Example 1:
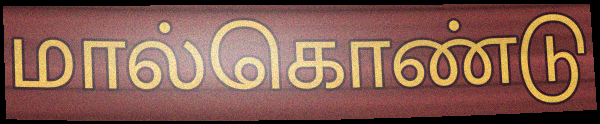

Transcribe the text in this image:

மால்கொண்டு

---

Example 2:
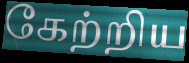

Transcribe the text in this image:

கேற்றிய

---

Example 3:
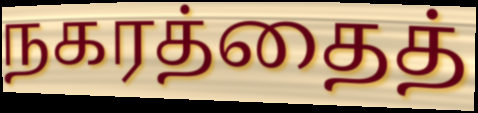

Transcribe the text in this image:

நகரத்தைத்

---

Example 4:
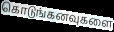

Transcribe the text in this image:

கொடுங்கனவுகளை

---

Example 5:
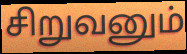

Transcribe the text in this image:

சிறுவனும்